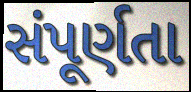
સંપૂર્ણતા